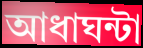
আধাঘন্টা